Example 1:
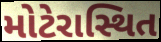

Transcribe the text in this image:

મોટેરાસ્થિત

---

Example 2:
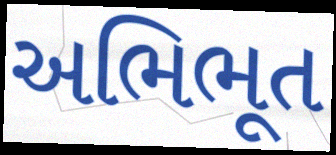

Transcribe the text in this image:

અભિભૂત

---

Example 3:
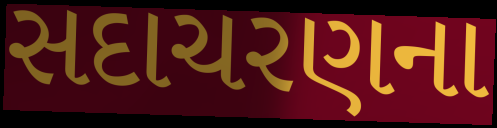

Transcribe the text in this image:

સદાચરણના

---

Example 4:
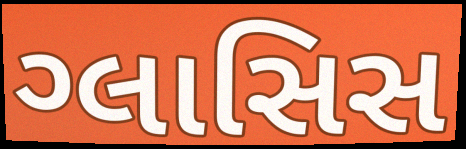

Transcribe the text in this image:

ગ્લાસિસ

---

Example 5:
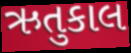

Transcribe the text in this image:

ઋતુકાલ